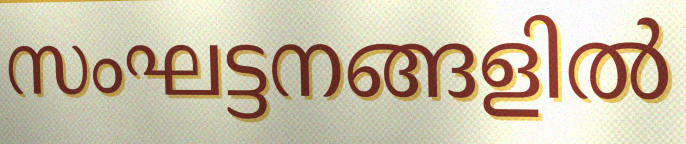
സംഘട്ടനങ്ങളിൽ